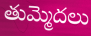
తుమ్మెదలు